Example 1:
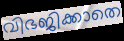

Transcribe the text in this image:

വിഭജിക്കാതെ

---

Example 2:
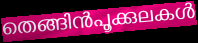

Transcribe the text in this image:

തെങ്ങിൻപൂക്കുലകൾ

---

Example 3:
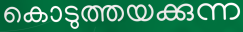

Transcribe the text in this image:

കൊടുത്തയക്കുന്ന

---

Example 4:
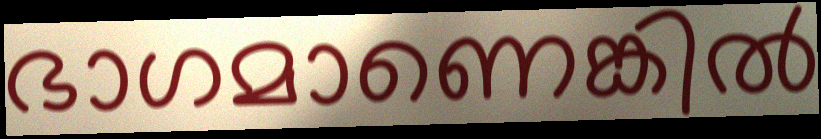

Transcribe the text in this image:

ഭാഗമാണെങ്കിൽ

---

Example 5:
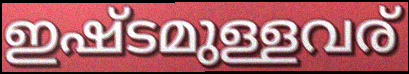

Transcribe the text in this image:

ഇഷ്ടമുള്ളവര്